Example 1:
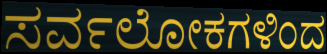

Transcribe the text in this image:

ಸರ್ವಲೋಕಗಳಿಂದ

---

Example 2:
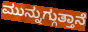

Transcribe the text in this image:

ಮುನ್ನುಗ್ಗುತ್ತಾನೆ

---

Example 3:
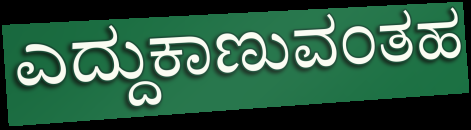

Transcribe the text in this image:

ಎದ್ದುಕಾಣುವಂತಹ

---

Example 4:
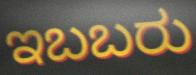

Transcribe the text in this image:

ಇಬಬರು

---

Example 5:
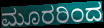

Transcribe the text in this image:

ಮೂರರಿಂದ